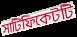
সার্টিফিকেটটি